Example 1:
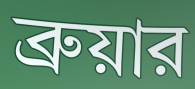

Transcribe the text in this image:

ব্রুয়ার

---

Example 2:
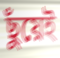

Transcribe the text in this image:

ছুঁয়েই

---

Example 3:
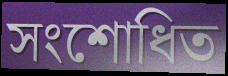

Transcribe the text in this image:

সংশোধিত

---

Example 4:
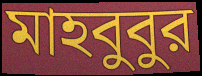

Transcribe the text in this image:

মাহবুবুর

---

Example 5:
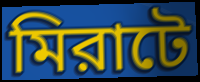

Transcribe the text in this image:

মিরাটে